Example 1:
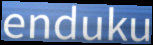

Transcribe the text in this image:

enduku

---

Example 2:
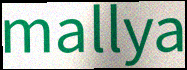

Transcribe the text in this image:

mallya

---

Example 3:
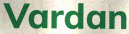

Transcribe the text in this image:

Vardan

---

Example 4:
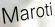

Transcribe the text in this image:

Maroti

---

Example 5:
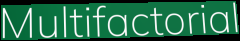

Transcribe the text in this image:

Multifactorial